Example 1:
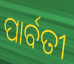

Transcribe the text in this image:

ପାର୍ବତୀ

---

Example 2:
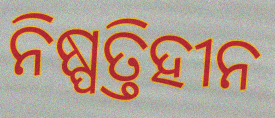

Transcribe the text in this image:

ନିଷ୍ପତ୍ତିହୀନ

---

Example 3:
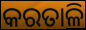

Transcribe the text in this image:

କରତାଳି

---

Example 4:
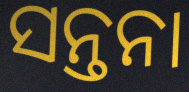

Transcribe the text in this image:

ସନ୍ତନା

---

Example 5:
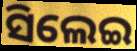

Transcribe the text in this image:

ସିଲେଇ